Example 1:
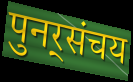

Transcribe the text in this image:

पुनर्संचय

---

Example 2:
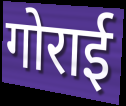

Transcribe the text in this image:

गोराई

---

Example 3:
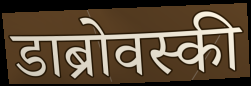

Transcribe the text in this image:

डाब्रोवस्की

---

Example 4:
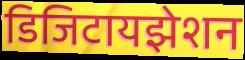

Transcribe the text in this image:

डिजिटायझेशन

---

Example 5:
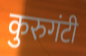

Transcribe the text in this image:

कुरुगंटी